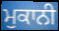
ਮੁਕਾਨੀ